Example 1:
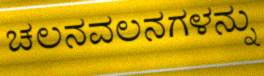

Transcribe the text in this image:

ಚಲನವಲನಗಳನ್ನು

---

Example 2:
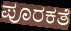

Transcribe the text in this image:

ಪೂರಕತೆ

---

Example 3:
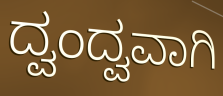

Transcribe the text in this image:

ದ್ವಂದ್ವವಾಗಿ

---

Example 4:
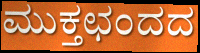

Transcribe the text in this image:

ಮುಕ್ತಛಂದದ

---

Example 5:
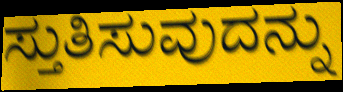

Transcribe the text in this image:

ಸ್ತುತಿಸುವುದನ್ನು